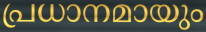
പ്രധാനമായും